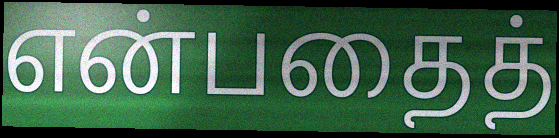
என்பதைத்